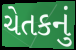
ચેતકનું